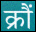
क्रौं